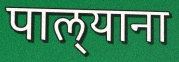
पाल्याना